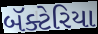
બૅક્ટેરિયા